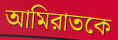
আমিরাতকে